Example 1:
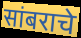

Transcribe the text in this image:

सांबराचे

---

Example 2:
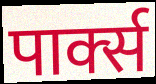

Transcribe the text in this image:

पार्क्‍स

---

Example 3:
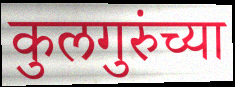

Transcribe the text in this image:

कुलगुरुंच्या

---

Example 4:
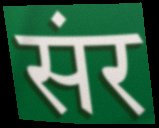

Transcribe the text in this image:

संर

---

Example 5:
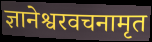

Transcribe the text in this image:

ज्ञानेश्वरवचनामृत